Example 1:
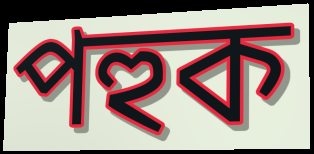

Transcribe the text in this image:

পহুক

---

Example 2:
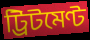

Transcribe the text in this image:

ট্ৰিটমেণ্ট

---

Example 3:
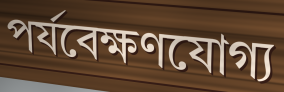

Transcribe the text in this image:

পৰ্যবেক্ষণযোগ্য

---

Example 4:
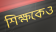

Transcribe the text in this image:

শিক্ষকেও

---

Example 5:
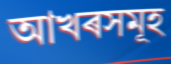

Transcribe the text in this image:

আখৰসমূহ